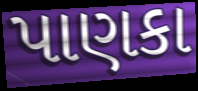
પાણકા